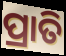
ପ୍ରାତି